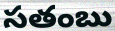
సతంబు